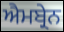
ਐਮਬ੍ਰੇਨ